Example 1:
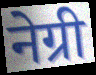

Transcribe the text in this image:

नेग्री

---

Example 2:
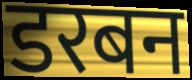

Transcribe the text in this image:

डरबन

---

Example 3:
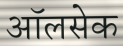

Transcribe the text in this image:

ऑलसेक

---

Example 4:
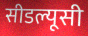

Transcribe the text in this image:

सीडल्यूसी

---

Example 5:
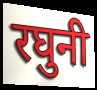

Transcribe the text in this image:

रघुनी